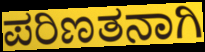
ಪರಿಣತನಾಗಿ